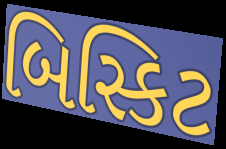
બિસ્કિટ